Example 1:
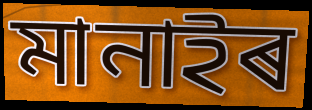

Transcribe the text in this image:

মানাইৰ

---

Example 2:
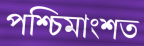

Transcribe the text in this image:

পশ্চিমাংশত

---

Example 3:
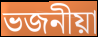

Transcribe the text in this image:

ভজনীয়া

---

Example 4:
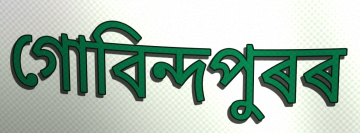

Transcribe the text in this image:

গোবিন্দপুৰৰ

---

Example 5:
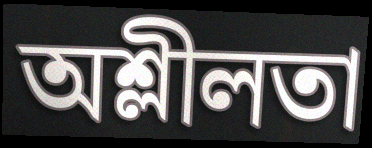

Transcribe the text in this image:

অশ্লীলতা